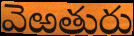
వెఱతురు